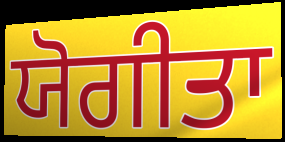
ਯੋਗੀਤਾ